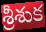
శ్రీశుక